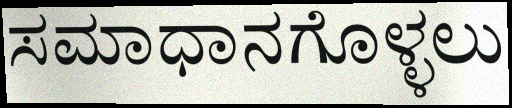
ಸಮಾಧಾನಗೊಳ್ಳಲು